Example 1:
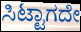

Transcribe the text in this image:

ಸಿಟ್ಟಾಗದೇ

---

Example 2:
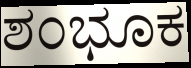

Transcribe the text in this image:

ಶಂಭೂಕ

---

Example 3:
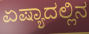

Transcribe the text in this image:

ಏಷ್ಯಾದಲ್ಲಿನ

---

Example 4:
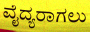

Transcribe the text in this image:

ವೈದ್ಯರಾಗಲು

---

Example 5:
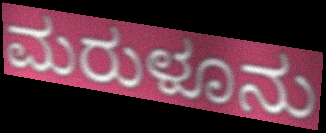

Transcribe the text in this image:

ಮರುಳೂನು